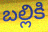
బల్లికి